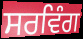
ਸਰਵਿੰਗ